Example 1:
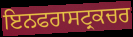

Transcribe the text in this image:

ਇਨਫਰਾਸਟ੍ਰਕਚਰ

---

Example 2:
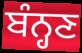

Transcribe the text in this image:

ਬੰਨ੍ਹਣ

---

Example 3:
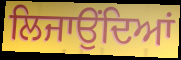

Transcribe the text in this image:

ਲਿਜਾਉਂਦਿਆਂ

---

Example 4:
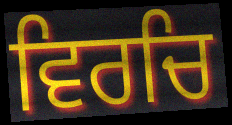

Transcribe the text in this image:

ਵਿਰਚਿ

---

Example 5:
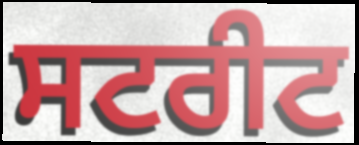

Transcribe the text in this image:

ਸਟਰੀਟ